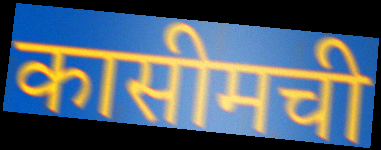
कासीमची